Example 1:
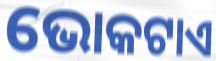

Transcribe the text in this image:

ଭୋକଟାଏ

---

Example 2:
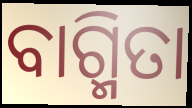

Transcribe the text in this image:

ବାଗ୍ମିତା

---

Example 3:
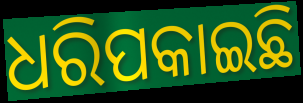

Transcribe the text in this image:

ଧରିପକାଇଛି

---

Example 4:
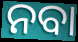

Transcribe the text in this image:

ନବା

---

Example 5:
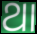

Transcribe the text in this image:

ଥା